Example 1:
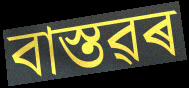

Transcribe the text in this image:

বাস্তৱৰ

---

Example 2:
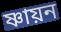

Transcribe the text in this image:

ষ্ণায়ন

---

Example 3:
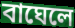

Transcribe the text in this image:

বাঘেলে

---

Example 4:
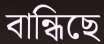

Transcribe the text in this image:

বান্ধিছে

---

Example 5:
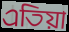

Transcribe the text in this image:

এতিয়া